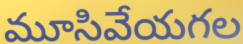
మూసివేయగల